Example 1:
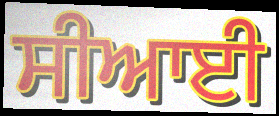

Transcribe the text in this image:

ਸੀਆਈ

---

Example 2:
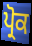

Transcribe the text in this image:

ਪ੍ਰੋਕ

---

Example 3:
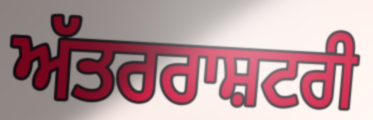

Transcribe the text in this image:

ਅੱਤਰਰਾਸ਼ਟਰੀ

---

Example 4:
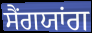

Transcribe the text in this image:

ਸੈਂਗਯਾਂਗ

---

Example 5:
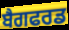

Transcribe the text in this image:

ਬੈਗਫਰਡ